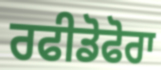
ਰਫੀਡੋਫੋਰਾ